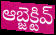
ఆబ్జెక్టివ్